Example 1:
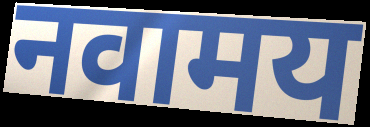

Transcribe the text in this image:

नवामय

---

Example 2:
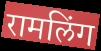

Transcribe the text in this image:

रामलिंग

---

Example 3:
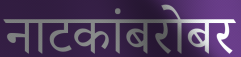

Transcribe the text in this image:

नाटकांबरोबर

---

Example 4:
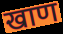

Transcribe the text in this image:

खाण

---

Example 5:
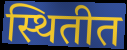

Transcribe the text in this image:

स्थितीत